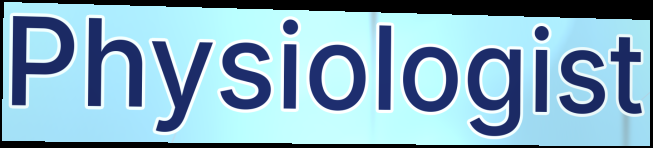
Physiologist